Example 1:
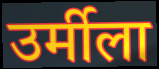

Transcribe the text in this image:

उर्मीला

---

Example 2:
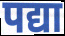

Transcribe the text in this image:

पद्या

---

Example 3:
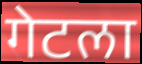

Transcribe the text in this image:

गेटला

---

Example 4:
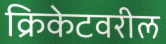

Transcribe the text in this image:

क्रिकेटवरील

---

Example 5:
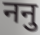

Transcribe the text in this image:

ननु